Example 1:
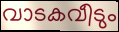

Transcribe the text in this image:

വാടകവീടും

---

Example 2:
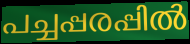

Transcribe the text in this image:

പച്ചപ്പരപ്പിൽ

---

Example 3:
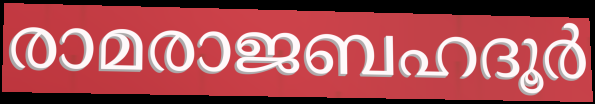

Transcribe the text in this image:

രാമരാജബഹദൂർ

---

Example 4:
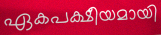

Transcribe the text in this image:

ഏകപക്ഷീയമായി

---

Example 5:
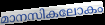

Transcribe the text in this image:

മാനസികലോകം